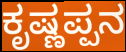
ಕೃಷ್ಣಪ್ಪನ